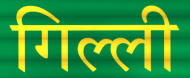
गिल्ली